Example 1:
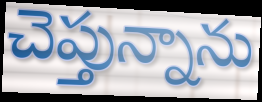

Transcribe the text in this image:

చెప్తున్నాను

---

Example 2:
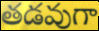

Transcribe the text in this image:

తడవుగా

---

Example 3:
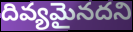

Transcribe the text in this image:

దివ్యమైనదని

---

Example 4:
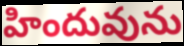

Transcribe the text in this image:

హిందువును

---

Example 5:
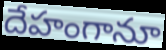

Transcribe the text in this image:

దేహంగానూ